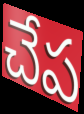
చేప